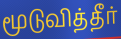
மூடுவித்தீர்